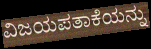
ವಿಜಯಪತಾಕೆಯನ್ನು